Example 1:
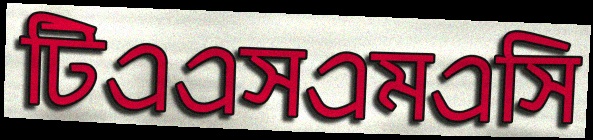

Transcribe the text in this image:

টিএএসএমএসি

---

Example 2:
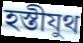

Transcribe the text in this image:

হস্তীযুথ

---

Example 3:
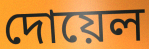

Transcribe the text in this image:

দোয়েল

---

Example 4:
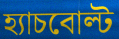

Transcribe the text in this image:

হ্যাচবোল্ট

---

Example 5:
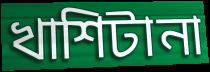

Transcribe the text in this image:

খাশিটানা